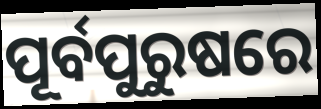
ପୂର୍ବପୁରୁଷରେ